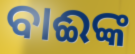
ବାଈଙ୍କ